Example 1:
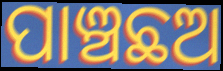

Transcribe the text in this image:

ପାଞ୍ଚଛଅ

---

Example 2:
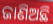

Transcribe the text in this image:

ଜାଣିଅଛି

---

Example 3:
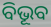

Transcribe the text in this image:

ବିଭୂବ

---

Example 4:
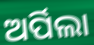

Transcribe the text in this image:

ଅର୍ପିଲା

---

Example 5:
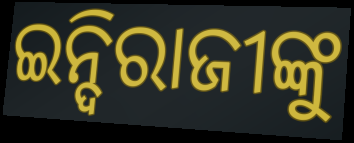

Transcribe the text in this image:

ଇନ୍ଦିରାଜୀଙ୍କୁ